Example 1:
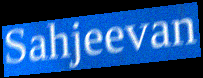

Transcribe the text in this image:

Sahjeevan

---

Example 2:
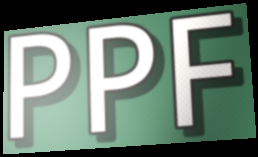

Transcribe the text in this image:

PPF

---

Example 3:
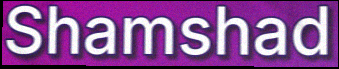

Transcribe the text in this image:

Shamshad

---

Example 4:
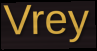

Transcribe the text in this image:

Vrey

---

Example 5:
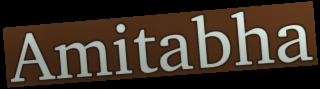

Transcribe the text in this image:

Amitabha